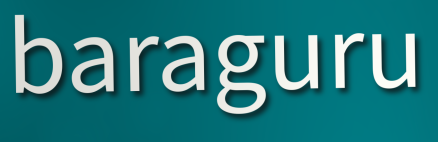
baraguru